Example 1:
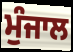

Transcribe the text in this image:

ਮੁੰਜਾਲ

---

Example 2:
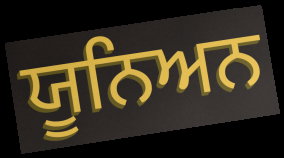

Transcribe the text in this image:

ਯੂਨਿਅਨ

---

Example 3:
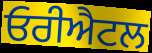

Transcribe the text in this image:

ਓਰੀਐਟਲ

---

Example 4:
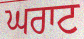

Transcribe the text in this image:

ਘਰਾਟ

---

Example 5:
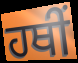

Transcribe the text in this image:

ਹਥੀਂ